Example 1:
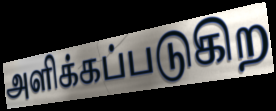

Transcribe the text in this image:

அளிக்கப்படுகிற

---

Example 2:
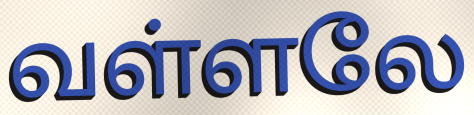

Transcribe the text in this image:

வள்ளலே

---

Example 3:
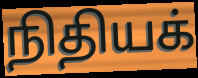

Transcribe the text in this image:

நிதியக்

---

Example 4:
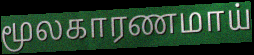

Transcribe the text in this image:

மூலகாரணமாய்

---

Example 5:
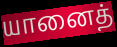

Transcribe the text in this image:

யானைத்